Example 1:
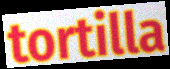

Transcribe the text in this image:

tortilla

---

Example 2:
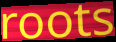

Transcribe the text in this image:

roots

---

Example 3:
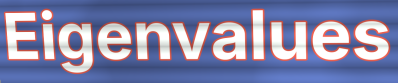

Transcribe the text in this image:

Eigenvalues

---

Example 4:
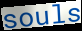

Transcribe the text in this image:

souls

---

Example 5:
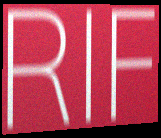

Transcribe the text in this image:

RIF